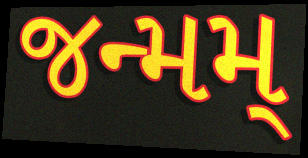
જન્મમ્